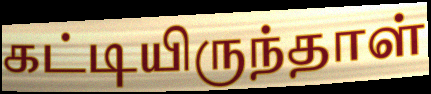
கட்டியிருந்தாள்